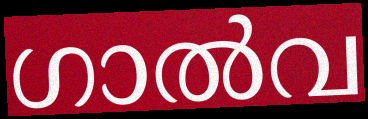
ഗാൽവ